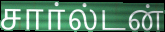
சார்ல்டன்